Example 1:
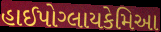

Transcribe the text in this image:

હાઈપોગ્લાયકેમિઆ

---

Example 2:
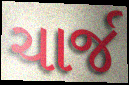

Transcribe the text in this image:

ચાર્જ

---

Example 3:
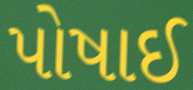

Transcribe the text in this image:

પોષાઈ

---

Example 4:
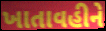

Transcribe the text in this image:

ખાતાવહીને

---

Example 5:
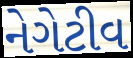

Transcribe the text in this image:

નેગેટીવ